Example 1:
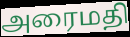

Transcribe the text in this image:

அரைமதி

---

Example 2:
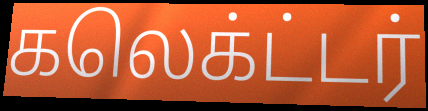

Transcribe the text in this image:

கலெக்ட்டர்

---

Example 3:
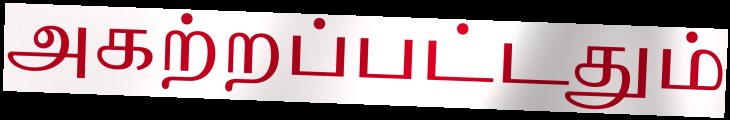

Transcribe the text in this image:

அகற்றப்பட்டதும்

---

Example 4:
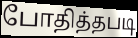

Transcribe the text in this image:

போதித்தபடி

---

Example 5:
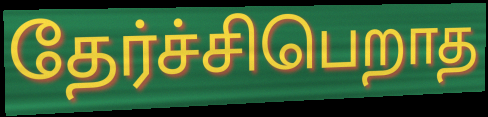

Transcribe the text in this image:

தேர்ச்சிபெறாத